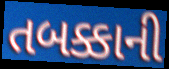
તબક્કાની